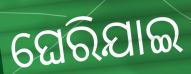
ଘେରିଯାଇ